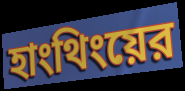
হাংথিংয়ের